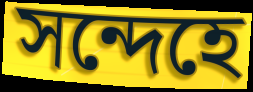
সন্দেহে